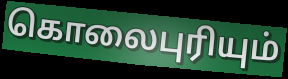
கொலைபுரியும்